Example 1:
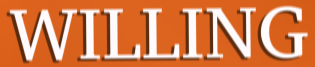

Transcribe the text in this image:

WILLING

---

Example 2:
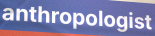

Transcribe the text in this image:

anthropologist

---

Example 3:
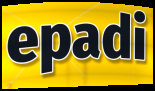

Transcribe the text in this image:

epadi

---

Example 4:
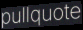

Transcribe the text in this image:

pullquote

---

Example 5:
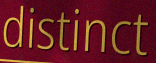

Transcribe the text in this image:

distinct